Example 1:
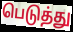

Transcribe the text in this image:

பெடுத்து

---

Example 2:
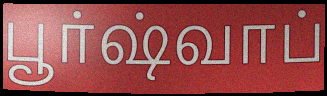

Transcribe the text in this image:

பூர்ஷ்வாப்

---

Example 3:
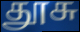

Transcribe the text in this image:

தூசு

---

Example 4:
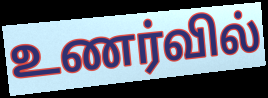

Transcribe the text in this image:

உணர்வில்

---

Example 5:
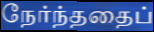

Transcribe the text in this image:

நேர்ந்ததைப்